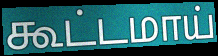
கூட்டமாய்